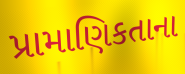
પ્રામાણિકતાના